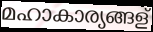
മഹാകാര്യങ്ങള്